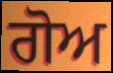
ਗੋਅ